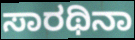
ಸಾರಥಿನಾ